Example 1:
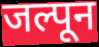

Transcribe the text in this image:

जल्पून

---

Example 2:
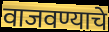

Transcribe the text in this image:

वाजवण्याचे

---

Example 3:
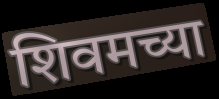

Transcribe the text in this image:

शिवमच्या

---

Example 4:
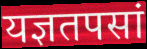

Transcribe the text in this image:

यज्ञतपसां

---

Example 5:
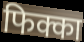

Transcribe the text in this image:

फिक्का